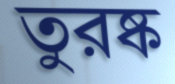
তুরষ্ক